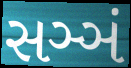
સઞ્ઞં